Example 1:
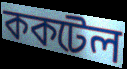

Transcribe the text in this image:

ককটেল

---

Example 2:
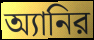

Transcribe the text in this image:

অ্যানির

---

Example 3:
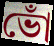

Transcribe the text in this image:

ভোঁ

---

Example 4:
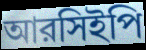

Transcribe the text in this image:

আরসিইপি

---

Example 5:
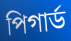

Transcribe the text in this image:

পিগার্ড